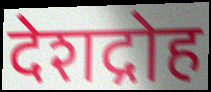
देशद्रोह